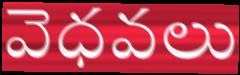
వెధవలు